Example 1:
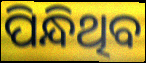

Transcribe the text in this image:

ପିନ୍ଧିଥିବ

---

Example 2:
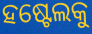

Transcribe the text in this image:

ହଷ୍ଟେଲକୁ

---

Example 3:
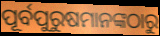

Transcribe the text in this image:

ପୂର୍ବପୁରୁଷମାନଙ୍କଠାରୁ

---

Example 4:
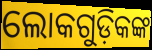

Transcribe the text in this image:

ଲୋକଗୁଡ଼ିକଙ୍କ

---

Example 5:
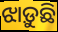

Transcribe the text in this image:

ଝାଡ଼ୁଛି